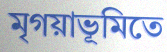
মৃগয়াভূমিতে